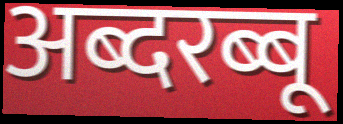
अब्दरब्बू